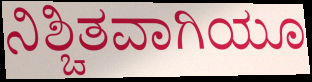
ನಿಶ್ಚಿತವಾಗಿಯೂ